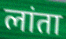
लांता